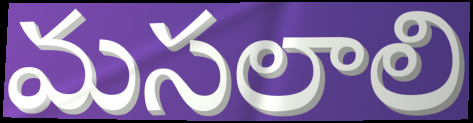
మసలాలి